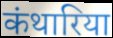
कंथारिया